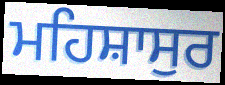
ਮਹਿਸ਼ਾਸੁਰ